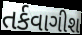
તર્કવાગીશ